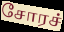
சோரச்